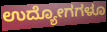
ಉದ್ಯೋಗಗಳೂ